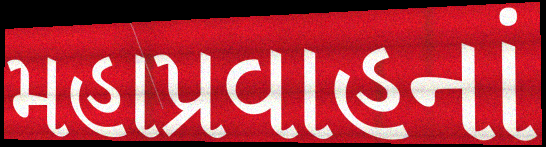
મહાપ્રવાહનાં